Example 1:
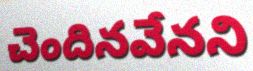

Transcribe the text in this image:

చెందినవేనని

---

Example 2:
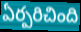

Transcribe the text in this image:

ఏర్పరిచింది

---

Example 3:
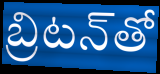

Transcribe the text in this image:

బ్రిటన్‌తో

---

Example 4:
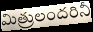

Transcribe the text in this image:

మిత్రులందరినీ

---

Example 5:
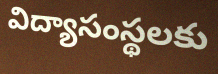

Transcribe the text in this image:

విద్యాసంస్థలకు